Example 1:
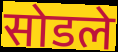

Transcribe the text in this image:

सोडले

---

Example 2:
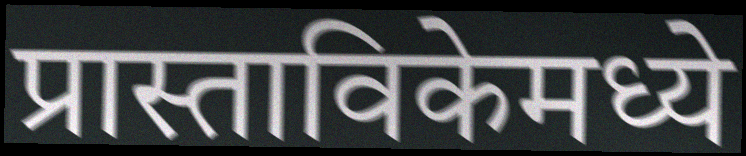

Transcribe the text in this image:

प्रास्ताविकेमध्ये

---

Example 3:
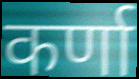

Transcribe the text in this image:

कर्णा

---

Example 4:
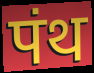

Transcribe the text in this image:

पंथ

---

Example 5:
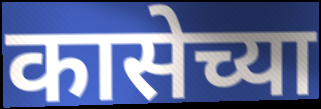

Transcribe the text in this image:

कासेच्या